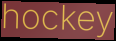
hockey